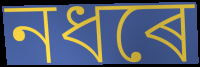
নধৰে